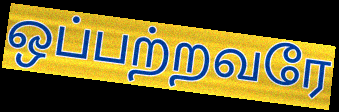
ஒப்பற்றவரே